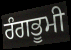
ਰੰਗਭੂਮੀ